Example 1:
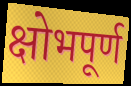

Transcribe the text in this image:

क्षोभपूर्ण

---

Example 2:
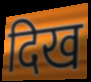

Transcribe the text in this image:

दिख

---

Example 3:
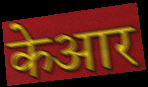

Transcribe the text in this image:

केआर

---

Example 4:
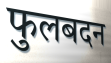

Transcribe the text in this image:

फुलबदन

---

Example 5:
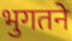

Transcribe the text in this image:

भुगतने